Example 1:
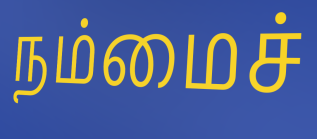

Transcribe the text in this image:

நம்மைச்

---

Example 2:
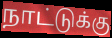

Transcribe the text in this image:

நாட்டுக்கு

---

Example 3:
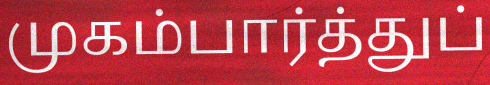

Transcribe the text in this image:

முகம்பார்த்துப்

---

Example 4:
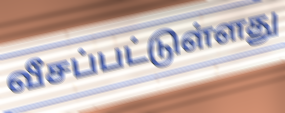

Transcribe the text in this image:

வீசப்பட்டுள்ளது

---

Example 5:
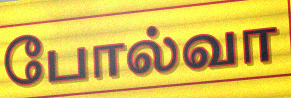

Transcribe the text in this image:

போல்வா